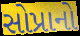
સોપ્રાનો